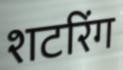
शटरिंग